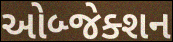
ઓબ્જેક્શન